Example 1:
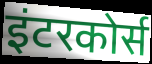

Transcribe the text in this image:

इंटरकोर्स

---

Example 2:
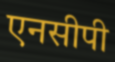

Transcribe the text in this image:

एनसीपी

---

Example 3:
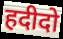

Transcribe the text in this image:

हदीदो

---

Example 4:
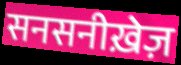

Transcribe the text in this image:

सनसनीख़ेज़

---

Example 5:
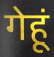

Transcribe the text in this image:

गेहूं